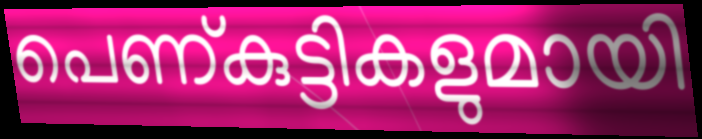
പെണ്കുട്ടികളുമായി